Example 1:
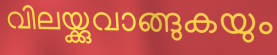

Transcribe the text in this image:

വിലയ്ക്കുവാങ്ങുകയും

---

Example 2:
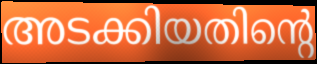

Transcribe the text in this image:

അടക്കിയതിന്റെ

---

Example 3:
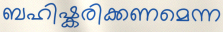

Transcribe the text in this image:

ബഹിഷ്കരിക്കണമെന്ന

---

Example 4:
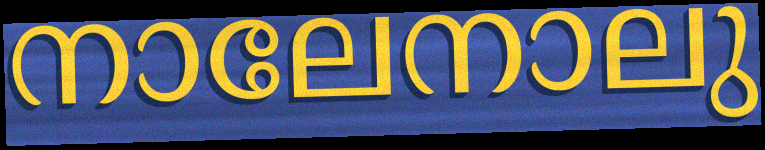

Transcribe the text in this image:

നാലേനാലു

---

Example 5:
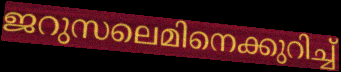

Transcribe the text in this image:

ജറുസലെമിനെക്കുറിച്ച്